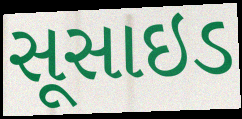
સૂસાઇડ